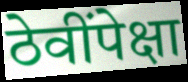
ठेवींपेक्षा